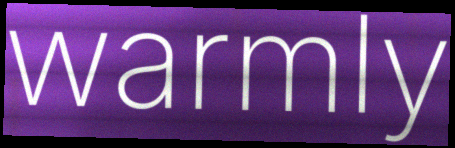
warmly